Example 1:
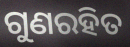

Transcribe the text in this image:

ଗୁଣରହିତ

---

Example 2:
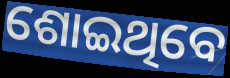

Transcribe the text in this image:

ଶୋଇଥିବେ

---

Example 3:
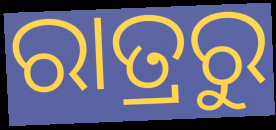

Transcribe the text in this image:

ରାତ୍ରରୁ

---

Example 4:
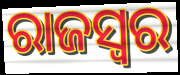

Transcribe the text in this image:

ରାଜସ୍ୱର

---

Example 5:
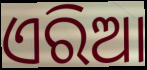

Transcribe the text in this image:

ଏରିଆ